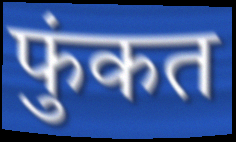
फुंकत